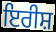
ਇਰੀਸ਼